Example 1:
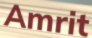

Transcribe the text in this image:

Amrit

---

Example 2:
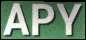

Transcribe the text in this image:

APY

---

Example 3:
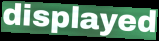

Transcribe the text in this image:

displayed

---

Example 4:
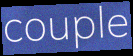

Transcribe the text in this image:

couple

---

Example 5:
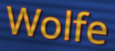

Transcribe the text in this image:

Wolfe